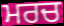
ਮਰਚ